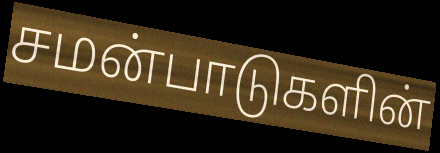
சமன்பாடுகளின்